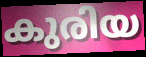
കുരിയ